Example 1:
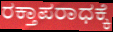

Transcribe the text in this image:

ರಕ್ತಾಪರಾಧಕ್ಕೆ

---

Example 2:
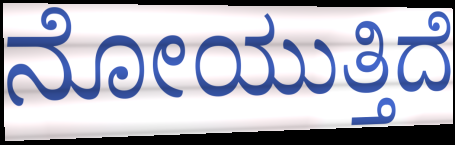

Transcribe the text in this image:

ನೋಯುತ್ತಿದೆ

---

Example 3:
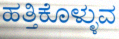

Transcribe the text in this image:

ಹತ್ತಿಕೊಳ್ಳುವ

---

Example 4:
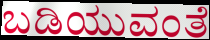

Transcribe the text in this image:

ಬಡಿಯುವಂತೆ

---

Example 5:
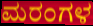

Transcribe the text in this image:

ಮರಂಗಳ